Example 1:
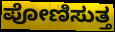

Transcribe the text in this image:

ಪೋಣಿಸುತ್ತ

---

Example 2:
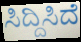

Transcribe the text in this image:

ಸಿದ್ದಿಸಿದೆ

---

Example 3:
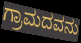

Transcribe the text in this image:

ಗ್ರಾಮದವನು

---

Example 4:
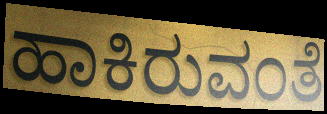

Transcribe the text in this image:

ಹಾಕಿರುವಂತೆ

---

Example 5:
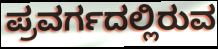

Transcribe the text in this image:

ಪ್ರವರ್ಗದಲ್ಲಿರುವ